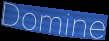
Domine